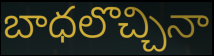
బాధలొచ్చినా